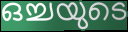
ഒച്ചയുടെ